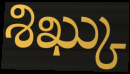
శిఖ్కు